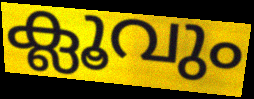
ക്ലൂവും